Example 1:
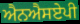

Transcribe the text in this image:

ਐਨਐਸਏਪੀ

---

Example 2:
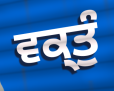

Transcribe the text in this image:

ਵਕ੍ਤੁੰ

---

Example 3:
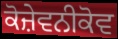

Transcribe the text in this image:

ਕੋਜ਼ੇਵਨੀਕੋਵ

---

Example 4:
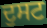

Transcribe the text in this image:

ਦੁਸਟ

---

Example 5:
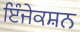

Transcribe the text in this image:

ਇੰਜੇਕਸ਼ਨ